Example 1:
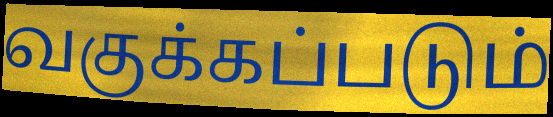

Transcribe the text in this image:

வகுக்கப்படும்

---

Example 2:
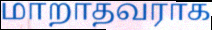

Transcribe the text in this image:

மாறாதவராக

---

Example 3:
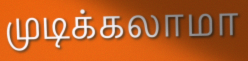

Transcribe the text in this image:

முடிக்கலாமா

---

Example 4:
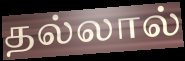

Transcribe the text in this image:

தல்லால்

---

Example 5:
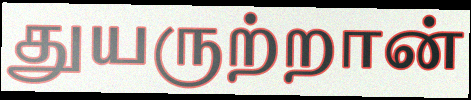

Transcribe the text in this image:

துயருற்றான்